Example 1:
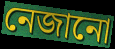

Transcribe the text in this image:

নেজানো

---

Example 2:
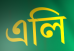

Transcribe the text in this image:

এলি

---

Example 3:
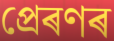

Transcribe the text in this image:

প্ৰেৰণৰ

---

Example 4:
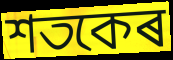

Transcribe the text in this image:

শতকেৰ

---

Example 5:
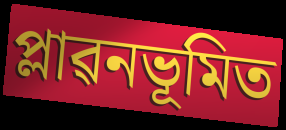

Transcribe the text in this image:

প্লাৱনভূমিত